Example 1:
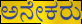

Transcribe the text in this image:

ಅನೇಕರು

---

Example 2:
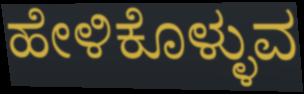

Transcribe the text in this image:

ಹೇಳಿಕೊಳ್ಳುವ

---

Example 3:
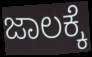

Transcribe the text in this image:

ಜಾಲಕ್ಕೆ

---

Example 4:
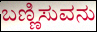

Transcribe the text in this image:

ಬಣ್ಣಿಸುವನು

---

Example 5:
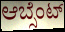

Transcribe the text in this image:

ಆಬ್ಸೆಂಟ್